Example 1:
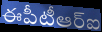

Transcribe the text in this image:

ఈపీటీఆర్ఐ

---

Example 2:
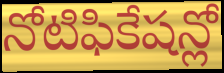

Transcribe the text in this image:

నోటిఫికేషన్లో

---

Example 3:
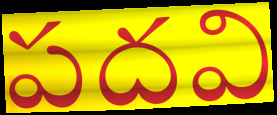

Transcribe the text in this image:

పదవి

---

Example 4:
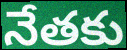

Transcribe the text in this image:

నేతకు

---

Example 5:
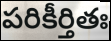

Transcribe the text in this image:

పరికీర్తితః